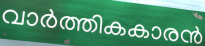
വാർത്തികകാരൻ